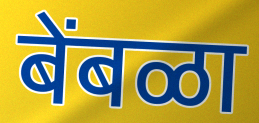
बेंबळा